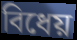
বিধেয়